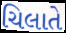
ચિલાતે